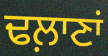
ਢਲ਼ਾਣਾਂ